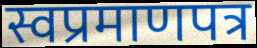
स्वप्रमाणपत्र